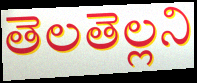
తెలతెల్లని